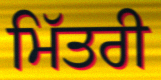
ਮਿੱਤਰੀ